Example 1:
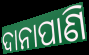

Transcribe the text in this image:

ଦାନାପାଣି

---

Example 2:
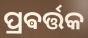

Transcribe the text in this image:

ପ୍ରଵର୍ତ୍ତକ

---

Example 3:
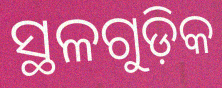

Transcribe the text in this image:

ସ୍ଥଳଗୁଡ଼ିକ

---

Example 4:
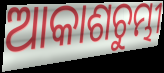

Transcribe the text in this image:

ଆକାଶଚୁମ୍ଭୀ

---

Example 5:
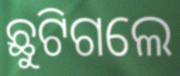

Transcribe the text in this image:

ଛୁଟିଗଲେ